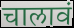
चालावं